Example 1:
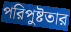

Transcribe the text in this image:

পরিপুষ্টতার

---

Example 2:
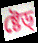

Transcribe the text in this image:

ষ্টেড্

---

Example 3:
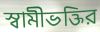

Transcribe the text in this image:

স্বামীভক্তির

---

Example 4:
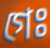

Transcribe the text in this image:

গেঃ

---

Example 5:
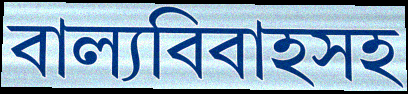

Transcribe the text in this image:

বাল্যবিবাহসহ